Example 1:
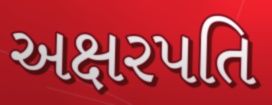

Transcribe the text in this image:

અક્ષરપતિ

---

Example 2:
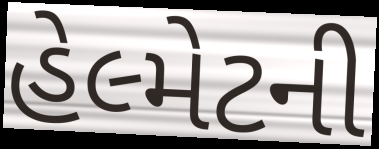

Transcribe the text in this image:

હેલ્મેટની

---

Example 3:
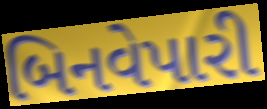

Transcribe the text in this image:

બિનવેપારી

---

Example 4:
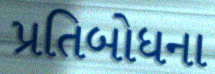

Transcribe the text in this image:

પ્રતિબોધના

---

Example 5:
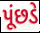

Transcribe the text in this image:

પૂંછડે